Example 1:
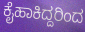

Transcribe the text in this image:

ಕೈಹಾಕಿದ್ದರಿಂದ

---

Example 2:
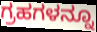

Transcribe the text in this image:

ಗ್ರಹಗಳನ್ನೂ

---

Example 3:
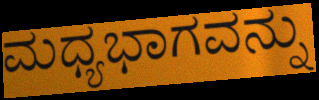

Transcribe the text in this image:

ಮಧ್ಯಭಾಗವನ್ನು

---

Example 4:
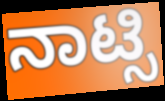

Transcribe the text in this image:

ನಾಟ್ಸಿ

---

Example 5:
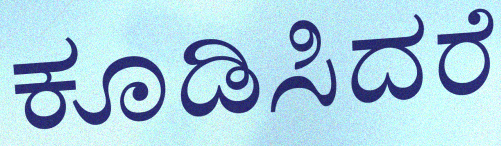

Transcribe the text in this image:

ಕೂಡಿಸಿದರೆ